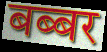
बब्बर